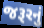
જરૂરનું